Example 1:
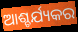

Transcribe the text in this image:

ଆଶ୍ଚର୍ଯ୍ୟକର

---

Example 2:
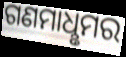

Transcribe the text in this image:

ଗଣମାଧୢମର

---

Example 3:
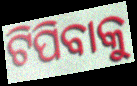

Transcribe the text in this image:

ଟିପିବାକୁ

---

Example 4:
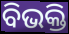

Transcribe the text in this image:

ବିଭକ୍ତି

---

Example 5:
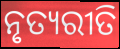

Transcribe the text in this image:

ନୃତ୍ୟରୀତି